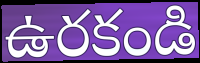
ఉరకండి